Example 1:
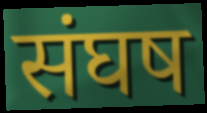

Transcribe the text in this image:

संघष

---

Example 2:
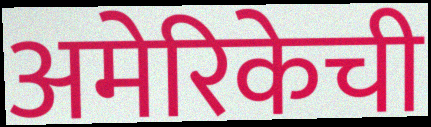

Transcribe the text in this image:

अमेरिकेची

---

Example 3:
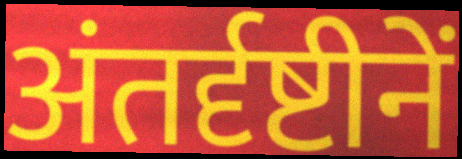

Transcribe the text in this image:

अंतर्दृष्टीनें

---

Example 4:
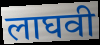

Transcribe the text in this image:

लाघवी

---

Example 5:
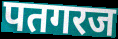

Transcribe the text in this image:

पतगरज